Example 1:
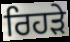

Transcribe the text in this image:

ਰਿਹੜੇ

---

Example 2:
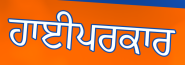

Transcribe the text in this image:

ਹਾਈਪਰਕਾਰ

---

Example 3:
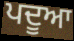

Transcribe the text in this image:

ਪਦੂਆ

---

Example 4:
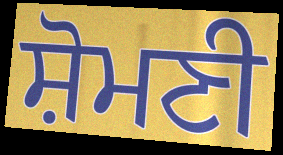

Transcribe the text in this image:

ਸ਼ੋਮਣੀ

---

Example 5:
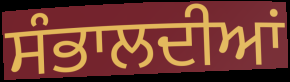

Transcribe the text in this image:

ਸੰਭਾਲਦੀਆਂ